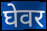
घेवर